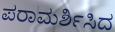
ಪರಾಮರ್ಶಿಸಿದ